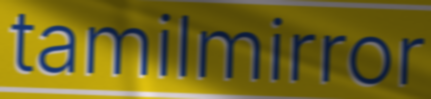
tamilmirror